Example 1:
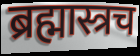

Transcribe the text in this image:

ब्रह्मास्त्रच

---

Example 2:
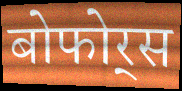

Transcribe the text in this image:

बोफोर्स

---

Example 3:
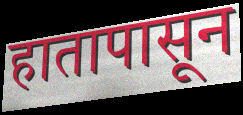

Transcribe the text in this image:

हातापासून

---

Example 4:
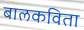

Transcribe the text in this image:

बालकविता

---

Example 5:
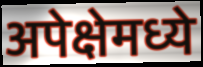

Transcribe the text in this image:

अपेक्षेमध्ये